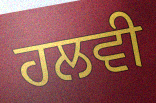
ਹਲਵੀ